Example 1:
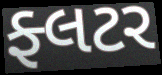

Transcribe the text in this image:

ફ્લટર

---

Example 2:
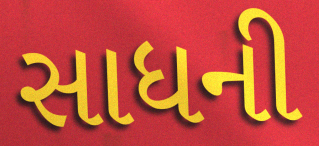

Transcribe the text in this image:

સાધની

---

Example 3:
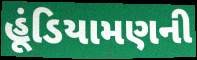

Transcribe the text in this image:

હૂંડિયામણની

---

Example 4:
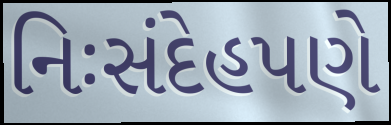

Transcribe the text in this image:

નિઃસંદેહપણે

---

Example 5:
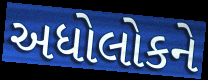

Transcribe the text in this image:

અધોલોકને